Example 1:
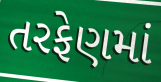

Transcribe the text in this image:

તરફેણમાં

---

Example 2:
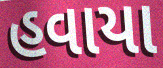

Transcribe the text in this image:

હવાયા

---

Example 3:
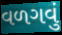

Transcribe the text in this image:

વળગવું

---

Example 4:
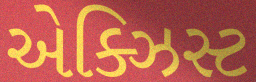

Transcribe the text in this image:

એક્ઝિસ્ટ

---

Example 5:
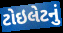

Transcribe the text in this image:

ટોઇલેટનું